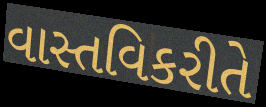
વાસ્તવિકરીતે